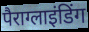
पैराग्लाइंडिंग